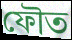
ফৌত